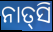
ନାତ୍‌ସି